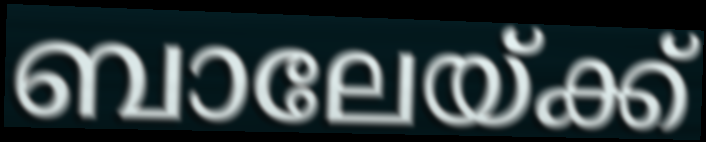
ബാലേയ്ക്ക്